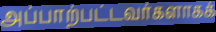
அப்பாற்பட்டவர்களாகக்